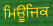
ਮਿਊਜਿਕ